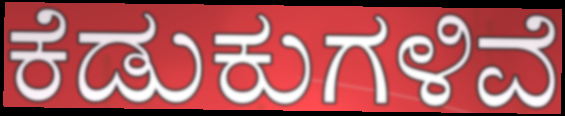
ಕೆಡುಕುಗಳಿವೆ